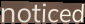
noticed